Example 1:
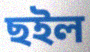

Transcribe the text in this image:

ছইল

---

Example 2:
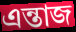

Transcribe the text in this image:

এন্তাজ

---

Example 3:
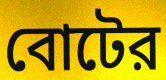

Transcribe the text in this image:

বোটের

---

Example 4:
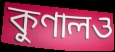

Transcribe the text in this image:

কুণালও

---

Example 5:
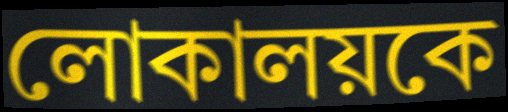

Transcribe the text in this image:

লোকালয়কে